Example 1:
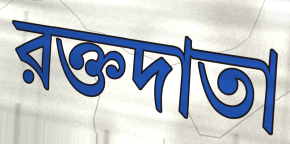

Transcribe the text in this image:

রক্তদাতা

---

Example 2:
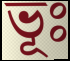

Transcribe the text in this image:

ভূঃ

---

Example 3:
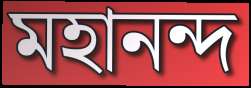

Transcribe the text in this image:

মহানন্দ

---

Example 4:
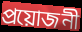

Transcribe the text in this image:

প্রয়োজনী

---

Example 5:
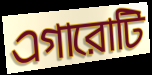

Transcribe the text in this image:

এগারোটি